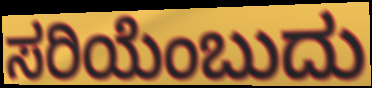
ಸರಿಯೆಂಬುದು